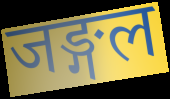
जङ्गल